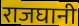
राजघानी